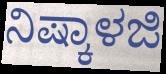
ನಿಷ್ಕಾಳಜಿ